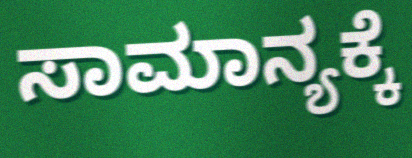
ಸಾಮಾನ್ಯಕ್ಕೆ